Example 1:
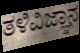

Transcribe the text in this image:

ತಳಿವಿಜ್ಞಾನ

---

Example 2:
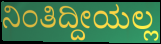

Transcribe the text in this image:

ನಿಂತಿದ್ದೀಯಲ್ಲ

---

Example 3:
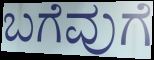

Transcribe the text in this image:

ಬಗೆವುಗೆ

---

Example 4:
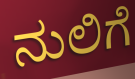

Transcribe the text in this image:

ನುಲಿಗೆ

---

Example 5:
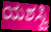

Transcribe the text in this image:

ಯಶಸ್ವಿ